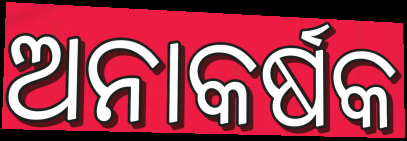
ଅନାକର୍ଷକ